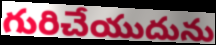
గురిచేయుదును